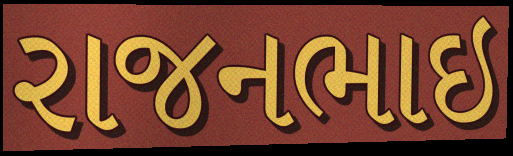
રાજનભાઇ